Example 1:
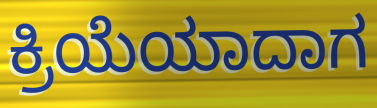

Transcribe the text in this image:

ಕ್ರಿಯೆಯಾದಾಗ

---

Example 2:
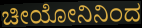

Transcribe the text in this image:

ಚೀಯೋನಿನಿಂದ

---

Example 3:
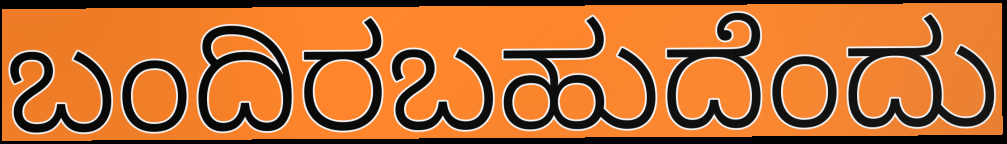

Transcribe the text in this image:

ಬಂದಿರಬಹುದೆಂದು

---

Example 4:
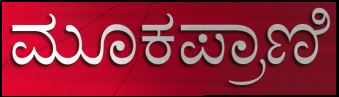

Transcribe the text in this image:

ಮೂಕಪ್ರಾಣಿ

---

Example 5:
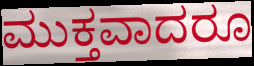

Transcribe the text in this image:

ಮುಕ್ತವಾದರೂ